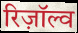
रिज़ॉल्व